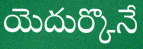
యెదుర్కొనే